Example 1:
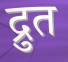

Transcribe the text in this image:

द्रुत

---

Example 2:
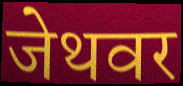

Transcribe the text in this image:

जेथवर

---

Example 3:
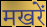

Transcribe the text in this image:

मखरें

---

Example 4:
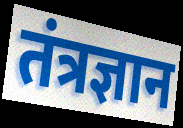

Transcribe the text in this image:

तंत्रज्ञान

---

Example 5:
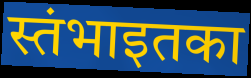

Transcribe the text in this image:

स्तंभाइतका